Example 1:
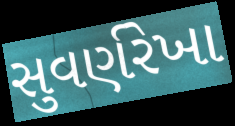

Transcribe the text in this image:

સુવર્ણરેખા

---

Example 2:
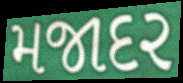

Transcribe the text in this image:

મજાદર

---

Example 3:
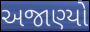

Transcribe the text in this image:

અજાણ્યો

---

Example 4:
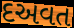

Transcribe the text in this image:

દઅવત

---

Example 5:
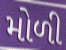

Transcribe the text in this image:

મોળી